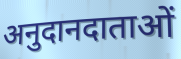
अनुदानदाताओं